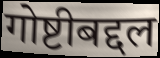
गोष्टीबद्दल